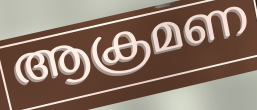
ആക്രമണ